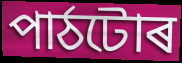
পাঠটোৰ